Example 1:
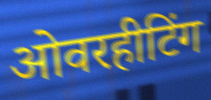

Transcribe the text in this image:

ओवरहीटिंग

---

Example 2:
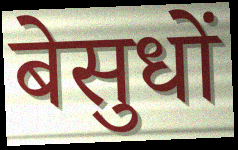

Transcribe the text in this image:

बेसुधों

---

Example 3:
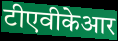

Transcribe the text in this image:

टीएवीकेआर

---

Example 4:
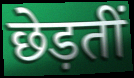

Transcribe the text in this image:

छेड़तीं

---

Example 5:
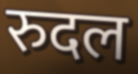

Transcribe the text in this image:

रुदल